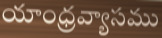
యాంధ్రవ్యాసము